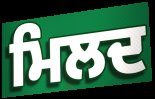
ਮਿਲਦ